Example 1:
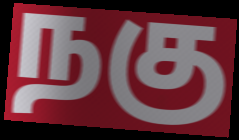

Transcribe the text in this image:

நகு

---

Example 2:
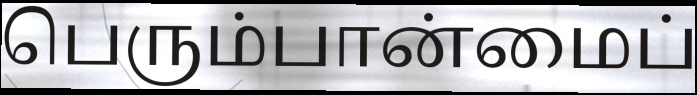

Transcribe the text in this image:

பெரும்பான்மைப்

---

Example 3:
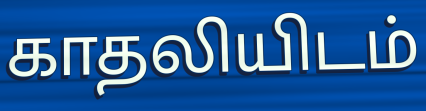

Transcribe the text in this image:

காதலியிடம்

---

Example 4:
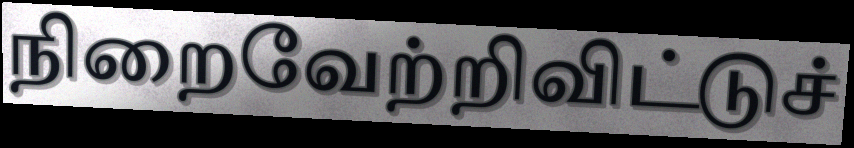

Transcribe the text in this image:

நிறைவேற்றிவிட்டுச்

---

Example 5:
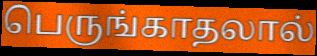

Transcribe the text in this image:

பெருங்காதலால்